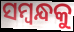
ସମ୍ବନ୍ଧକୁ